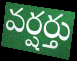
వర్షర్తు